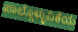
ಪಾಲ್ಗೊಳ್ಳುವಿಕೆಯ